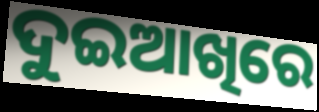
ଦୁଇଆଖିରେ